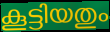
കൂട്ടിയതും